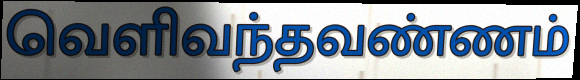
வெளிவந்தவண்ணம்